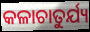
କଳାଚାତୁର୍ଯ୍ୟ